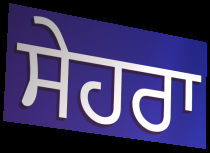
ਸੇਹਰਾ